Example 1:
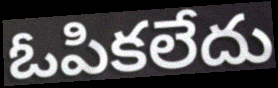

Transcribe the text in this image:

ఓపికలేదు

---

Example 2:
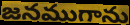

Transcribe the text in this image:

జనముగాను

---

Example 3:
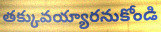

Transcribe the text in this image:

తక్కువయ్యారనుకోండి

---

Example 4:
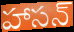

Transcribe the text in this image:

హాసన్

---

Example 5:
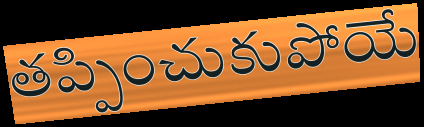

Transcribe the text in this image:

తప్పించుకుపోయే